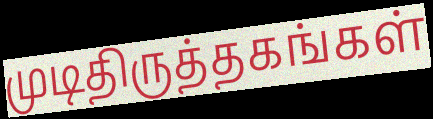
முடிதிருத்தகங்கள்